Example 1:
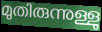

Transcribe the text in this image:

മുതിരുന്നുള്ളു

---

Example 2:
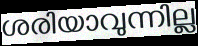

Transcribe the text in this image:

ശരിയാവുന്നില്ല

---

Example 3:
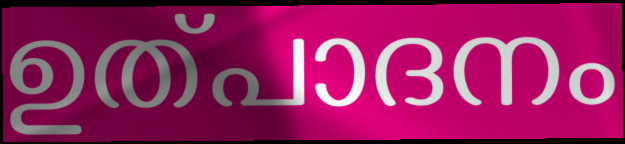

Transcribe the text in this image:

ഉത്പാദനം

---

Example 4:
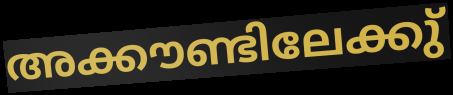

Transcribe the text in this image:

അക്കൗണ്ടിലേക്കു്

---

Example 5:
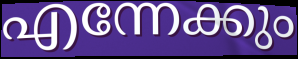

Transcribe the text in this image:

എന്നേക്കും